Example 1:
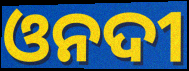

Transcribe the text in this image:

ଓନଦୀ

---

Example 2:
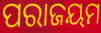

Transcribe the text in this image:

ପରାଜୟମ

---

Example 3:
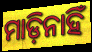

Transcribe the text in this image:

ମାଡ଼ିନାହିଁ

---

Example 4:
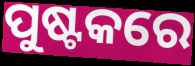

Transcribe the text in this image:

ପୁଷ୍ଟକରେ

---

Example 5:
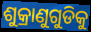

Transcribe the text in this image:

ଶୁକ୍ରାଣୁଗୁଡିକୁ